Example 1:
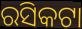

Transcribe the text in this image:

ରସିକଟା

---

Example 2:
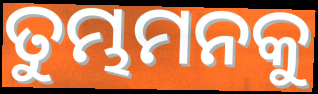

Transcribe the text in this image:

ତୁମ୍ଭମନକୁ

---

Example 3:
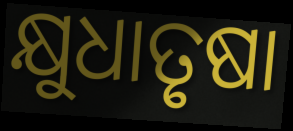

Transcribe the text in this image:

କ୍ଷୁଧାତୃଷା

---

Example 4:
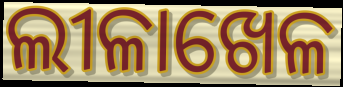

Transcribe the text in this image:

ଲୀଳାଖେଳ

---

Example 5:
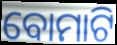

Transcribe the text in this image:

ବୋମାଟି